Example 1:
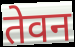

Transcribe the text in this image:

तेवन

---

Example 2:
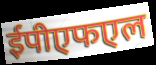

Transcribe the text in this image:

ईपीएफएल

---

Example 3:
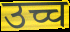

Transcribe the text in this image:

उच्‍च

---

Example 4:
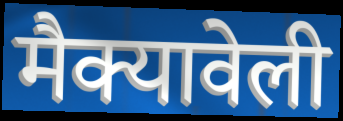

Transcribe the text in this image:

मैक्यावेली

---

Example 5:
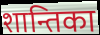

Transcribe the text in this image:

शान्तिका